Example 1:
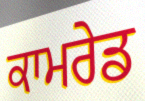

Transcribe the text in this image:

ਕਾਮਰੇਡ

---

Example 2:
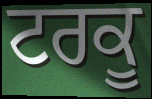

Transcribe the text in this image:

ਟਰਕੂ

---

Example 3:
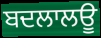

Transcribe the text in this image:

ਬਦਲਾਲਊ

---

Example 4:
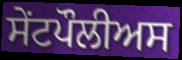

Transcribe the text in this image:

ਸੇਂਟਪੌਲੀਅਸ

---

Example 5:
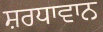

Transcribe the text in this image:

ਸ਼ਰਧਾਵਾਨ